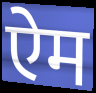
ऐम